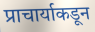
प्राचार्याकडून